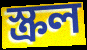
স্ক্রল